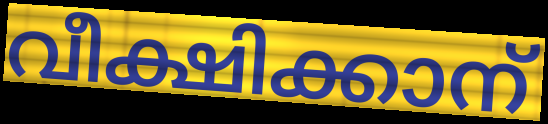
വീക്ഷിക്കാന്